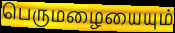
பெருமழையையும்